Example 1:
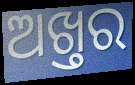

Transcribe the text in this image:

ଅଖ୍ତର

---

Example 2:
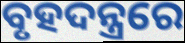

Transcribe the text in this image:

ବୃହଦନ୍ତ୍ରରେ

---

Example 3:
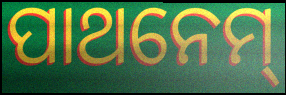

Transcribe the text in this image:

ପାଥନେମ୍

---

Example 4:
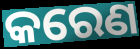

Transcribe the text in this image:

କରେଣ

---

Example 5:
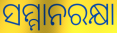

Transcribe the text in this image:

ସମ୍ମାନରକ୍ଷା